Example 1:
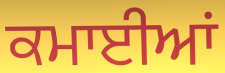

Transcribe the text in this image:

ਕਮਾਈਆਂ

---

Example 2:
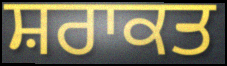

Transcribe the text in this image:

ਸ਼ਰਾਕਤ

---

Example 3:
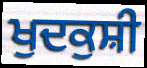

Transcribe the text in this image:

ਖੁਦਕੁਸ਼ੀ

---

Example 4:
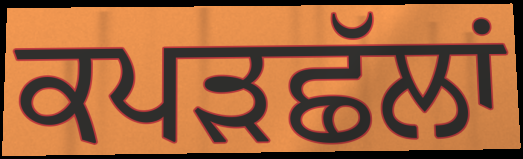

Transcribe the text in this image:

ਕਪੜਛੱਲਾਂ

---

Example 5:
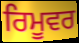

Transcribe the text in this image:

ਰਿਮੂਵਰ